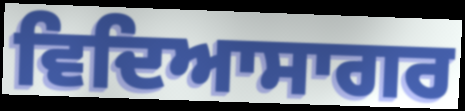
ਵਿਦਿਆਸਾਗਰ